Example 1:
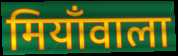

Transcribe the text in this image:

मियाँवाला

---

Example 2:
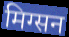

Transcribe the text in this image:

मिग्सन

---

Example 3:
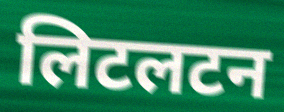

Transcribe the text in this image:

लिटलटन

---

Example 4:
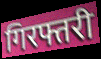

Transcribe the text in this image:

गिरफ्तरी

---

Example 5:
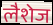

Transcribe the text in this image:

लैशेज